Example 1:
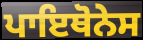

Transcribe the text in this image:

ਪਾਇਥੋਨੇਸ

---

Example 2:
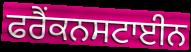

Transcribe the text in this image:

ਫਰੈਂਕਨਸਟਾਈਨ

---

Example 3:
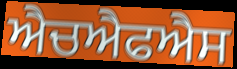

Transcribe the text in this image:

ਐਚਐਫਐਸ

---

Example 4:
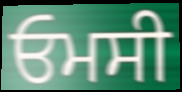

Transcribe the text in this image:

ਓਮਸੀ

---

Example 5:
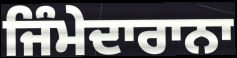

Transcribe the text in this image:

ਜਿੰਮੇਦਾਰਾਨਾ